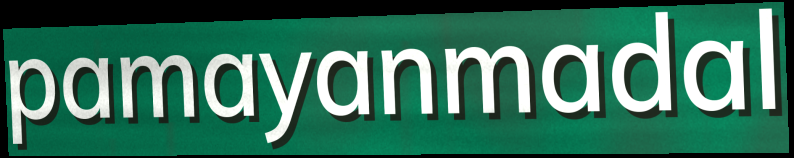
pamayanmadal